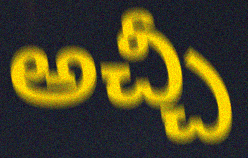
అచ్చీ